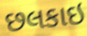
છલકાઇ